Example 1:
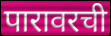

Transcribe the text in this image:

पारावरची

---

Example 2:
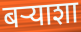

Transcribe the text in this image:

बऱ्याशा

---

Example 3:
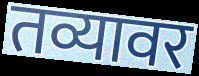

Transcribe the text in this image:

तव्यावर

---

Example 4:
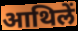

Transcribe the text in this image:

आथिलें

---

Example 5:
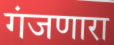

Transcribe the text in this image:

गंजणारा